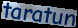
taratun